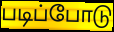
படிப்போடு